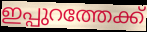
ഇപ്പുറത്തേക്ക്